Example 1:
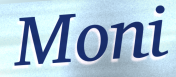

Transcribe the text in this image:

Moni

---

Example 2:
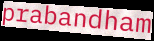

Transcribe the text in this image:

prabandham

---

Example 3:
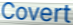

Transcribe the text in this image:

Covert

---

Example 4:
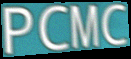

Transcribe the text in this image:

PCMC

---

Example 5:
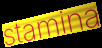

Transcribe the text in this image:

stamina